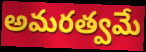
అమరత్వమే